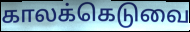
காலக்கெடுவை